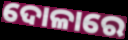
ଦୋଳାରେ